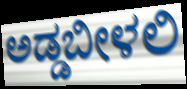
ಅಡ್ಡಬೀಳಲಿ